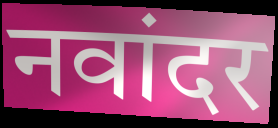
नवांदर